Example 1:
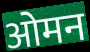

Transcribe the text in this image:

ओमन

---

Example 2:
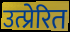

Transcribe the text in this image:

उत्प्रेरित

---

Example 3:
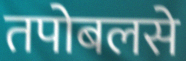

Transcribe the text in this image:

तपोबलसे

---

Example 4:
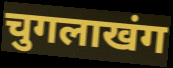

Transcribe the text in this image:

चुगलाखंग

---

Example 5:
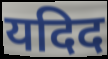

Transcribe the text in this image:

यदिद